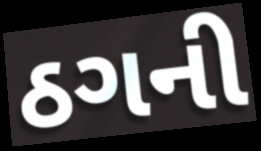
ઠગની